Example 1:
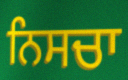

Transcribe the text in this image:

ਨਿਸਚਾ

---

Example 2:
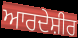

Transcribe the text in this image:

ਆਰਦੇਸ਼ੀਰ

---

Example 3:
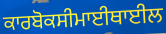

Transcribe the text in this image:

ਕਾਰਬੋਕਸੀਮਾਈਥਾਈਲ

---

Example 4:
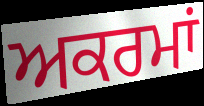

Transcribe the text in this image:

ਅਕਰਮਾਂ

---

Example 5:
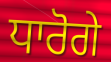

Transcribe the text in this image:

ਧਾਰੋਗੇ